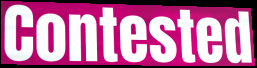
Contested